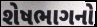
શેષભાગનો